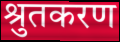
श्रुतकरण